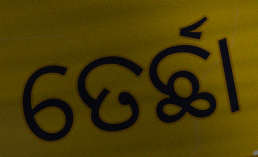
ତେର୍ଛା